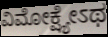
ವಿಮೋಕ್ಷ್ಯೇಽಥ